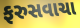
ફરુસવાચા